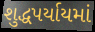
શુદ્ધપર્યાયમાં